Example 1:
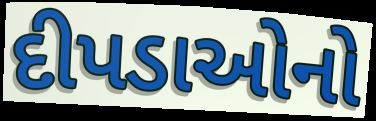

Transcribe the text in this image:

દીપડાઓનો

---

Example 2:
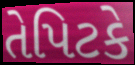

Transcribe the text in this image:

તેપિટકે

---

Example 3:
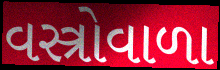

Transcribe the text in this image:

વસ્ત્રોવાળા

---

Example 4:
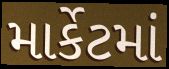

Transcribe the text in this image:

માર્કેટમાં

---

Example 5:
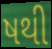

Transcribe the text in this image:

ષથી